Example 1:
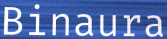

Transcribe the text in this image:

Binaura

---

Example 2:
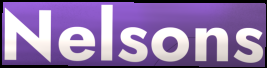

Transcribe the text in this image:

Nelsons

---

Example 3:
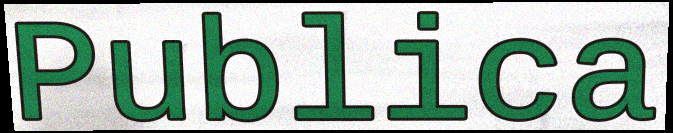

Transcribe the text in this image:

Publica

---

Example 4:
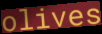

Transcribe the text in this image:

olives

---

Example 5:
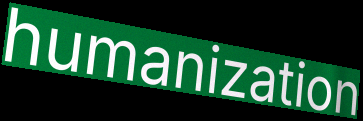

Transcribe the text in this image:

humanization